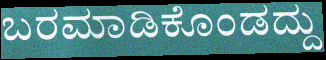
ಬರಮಾಡಿಕೊಂಡದ್ದು